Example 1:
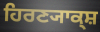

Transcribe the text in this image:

ਹਿਰਣ੍ਯਾਕ੍ਸ਼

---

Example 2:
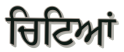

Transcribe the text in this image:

ਚਿਟਿਆਂ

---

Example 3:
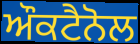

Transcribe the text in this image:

ਔਕਟੈਨੋਲ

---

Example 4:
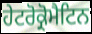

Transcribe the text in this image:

ਹੇਟਰੋਕ੍ਰੋਮੈਟਿਨ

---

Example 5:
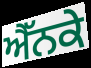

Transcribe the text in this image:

ਐੱਨਕੇ